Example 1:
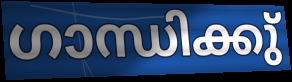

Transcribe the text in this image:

ഗാന്ധിക്കു്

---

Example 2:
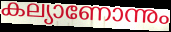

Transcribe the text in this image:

കല്യാണോന്നും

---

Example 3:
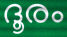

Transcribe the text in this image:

ദൂരം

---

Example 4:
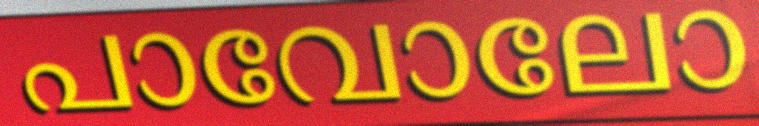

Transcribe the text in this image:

പാവോലോ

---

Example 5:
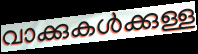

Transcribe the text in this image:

വാക്കുകൾക്കുള്ള